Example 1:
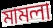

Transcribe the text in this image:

মামলা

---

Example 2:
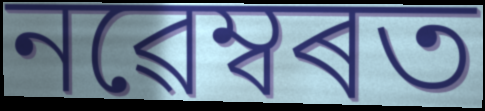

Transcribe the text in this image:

নৱেম্বৰত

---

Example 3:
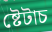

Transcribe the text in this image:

ষ্টেটাচ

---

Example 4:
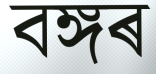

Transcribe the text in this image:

বঙ্গৰ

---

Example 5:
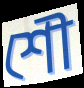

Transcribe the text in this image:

শৌ